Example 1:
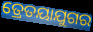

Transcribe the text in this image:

ତ୍ରେତୟାଯୁଗର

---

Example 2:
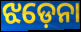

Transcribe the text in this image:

ଝଡ଼େନା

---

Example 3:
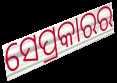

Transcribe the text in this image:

ସେପ୍ରକାରର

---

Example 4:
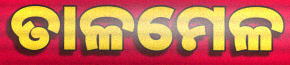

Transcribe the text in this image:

ତାଳମେଳ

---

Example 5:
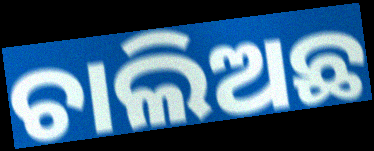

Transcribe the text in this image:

ଚାଲିଅଛ